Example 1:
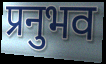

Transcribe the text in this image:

प्रनुभव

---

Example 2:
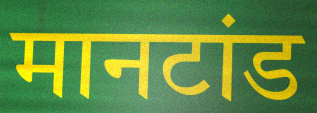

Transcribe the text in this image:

मानटांड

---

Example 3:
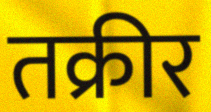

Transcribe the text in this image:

तक्रीर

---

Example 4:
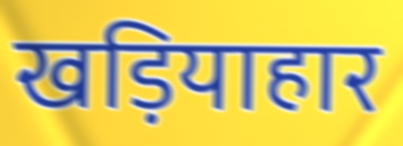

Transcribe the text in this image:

खड़ियाहार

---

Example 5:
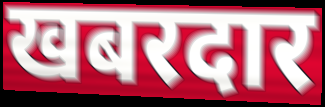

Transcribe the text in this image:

खबरदार